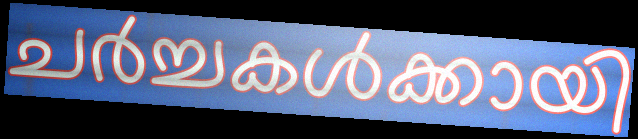
ചർച്ചകൾക്കായി